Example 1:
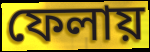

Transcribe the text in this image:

ফেলায়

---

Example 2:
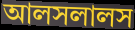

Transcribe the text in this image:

আলসলালস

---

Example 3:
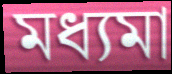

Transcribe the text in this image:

মধ্যমা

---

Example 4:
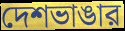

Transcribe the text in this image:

দেশভাঙার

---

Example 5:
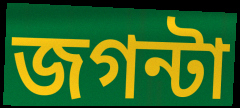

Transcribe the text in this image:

জগন্টা